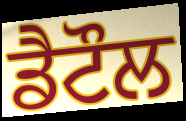
ਡੈਟੌਲ